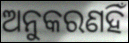
ଅନୁକରଣହିଁ